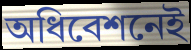
অধিবেশনেই